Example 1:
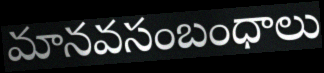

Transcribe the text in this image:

మానవసంబంధాలు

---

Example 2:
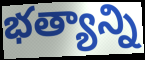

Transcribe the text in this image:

భత్యాన్ని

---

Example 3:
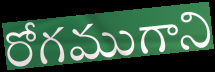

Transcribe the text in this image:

రోగముగాని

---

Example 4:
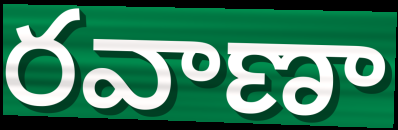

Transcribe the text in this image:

రవాణా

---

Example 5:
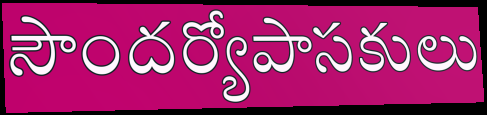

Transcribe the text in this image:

సౌందర్యోపాసకులు